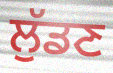
ਲੁੱਡਣ